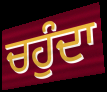
ਚਹੁੰਦਾ